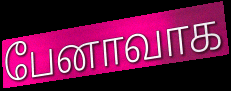
பேனாவாக